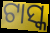
ଟାସ୍କ